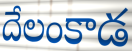
దేలంకాడ